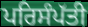
ਪਰਿਸੰਪੱਤੀ